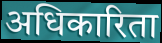
अधिकारिता